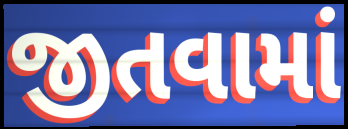
જીતવામાં